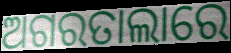
ଅଗରତାଲାରେ